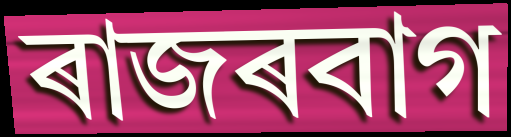
ৰাজৰবাগ